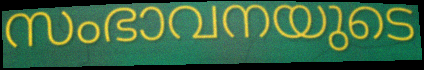
സംഭാവനയുടെ